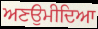
ਅਣਉਮੀਦਿਆ